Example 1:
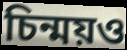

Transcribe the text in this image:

চিন্ময়ও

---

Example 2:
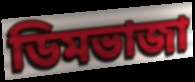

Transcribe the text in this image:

ডিমভাজা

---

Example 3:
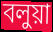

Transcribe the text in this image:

বলুয়া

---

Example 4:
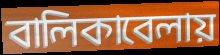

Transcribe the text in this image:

বালিকাবেলায়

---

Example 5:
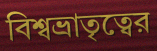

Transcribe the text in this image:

বিশ্বভ্রাতৃত্বের